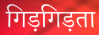
गिड़गिड़ता